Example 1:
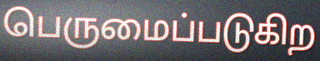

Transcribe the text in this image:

பெருமைப்படுகிற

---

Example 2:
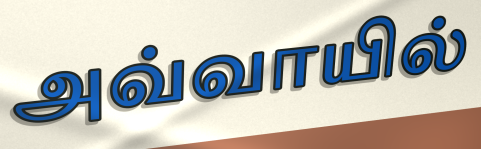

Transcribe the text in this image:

அவ்வாயில்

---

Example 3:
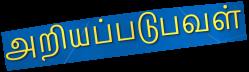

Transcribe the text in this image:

அறியப்படுபவள்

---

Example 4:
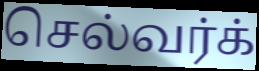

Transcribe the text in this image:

செல்வர்க்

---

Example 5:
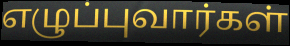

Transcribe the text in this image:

எழுப்புவார்கள்